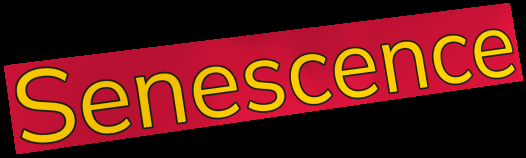
Senescence